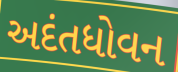
અદંતધોવન